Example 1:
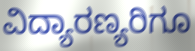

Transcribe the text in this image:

ವಿದ್ಯಾರಣ್ಯರಿಗೂ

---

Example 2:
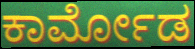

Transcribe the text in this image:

ಕಾರ್ಮೋಡ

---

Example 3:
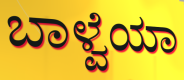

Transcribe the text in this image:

ಬಾಳ್ವೆಯಾ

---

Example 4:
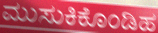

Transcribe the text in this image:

ಮುಸುಕಿಕೊಂಡಿಹ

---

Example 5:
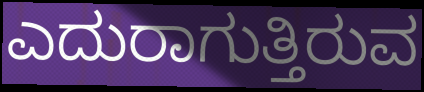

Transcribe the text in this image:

ಎದುರಾಗುತ್ತಿರುವ